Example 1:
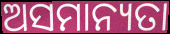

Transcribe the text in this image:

ଅସମାନ୍ୟତା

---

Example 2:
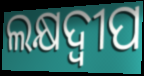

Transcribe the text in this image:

ଲକ୍ଷଦ୍ୱୀପ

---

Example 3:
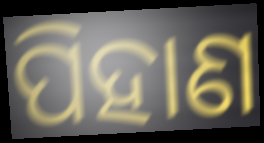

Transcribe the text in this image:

ପିହାଣ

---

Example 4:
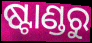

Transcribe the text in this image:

ଷ୍ଟାଣ୍ଡରୁ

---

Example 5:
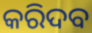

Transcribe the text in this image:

କରିଦବ